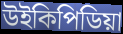
উইকিপিডিয়া